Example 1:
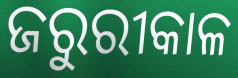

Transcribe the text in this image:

ଜରୁରୀକାଳ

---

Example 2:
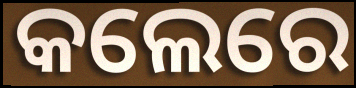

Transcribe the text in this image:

କଲେରେ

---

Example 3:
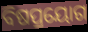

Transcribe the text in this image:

ବିଷପ୍ରୟୋଗ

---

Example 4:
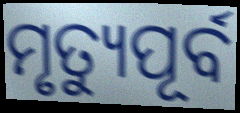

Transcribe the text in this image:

ମୃତ୍ୟୁପୂର୍ବ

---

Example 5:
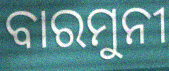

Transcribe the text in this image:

ବାରମୁନୀ